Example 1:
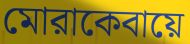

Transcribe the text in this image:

মোরাকেবায়ে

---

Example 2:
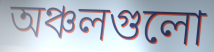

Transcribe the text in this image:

অঞ্চলগুলো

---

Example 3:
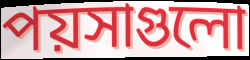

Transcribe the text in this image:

পয়সাগুলো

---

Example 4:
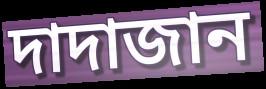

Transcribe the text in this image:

দাদাজান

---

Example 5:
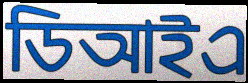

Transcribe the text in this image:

ডিআইএ